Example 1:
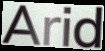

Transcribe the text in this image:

Arid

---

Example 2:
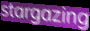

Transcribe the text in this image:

stargazing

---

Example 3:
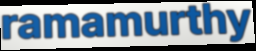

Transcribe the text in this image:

ramamurthy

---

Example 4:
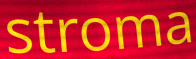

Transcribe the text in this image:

stroma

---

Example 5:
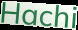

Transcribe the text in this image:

Hachi